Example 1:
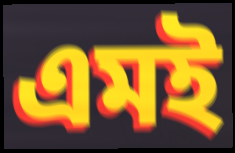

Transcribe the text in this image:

এমই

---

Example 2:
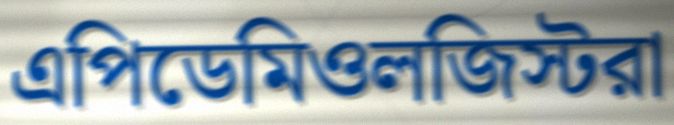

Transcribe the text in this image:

এপিডেমিওলজিস্টরা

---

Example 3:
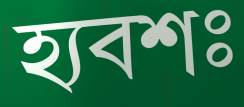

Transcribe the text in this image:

হ্যবশঃ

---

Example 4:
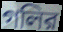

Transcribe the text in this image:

গলির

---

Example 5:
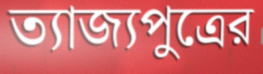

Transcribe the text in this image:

ত্যাজ্যপুত্রের